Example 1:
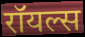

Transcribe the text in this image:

रॉयल्स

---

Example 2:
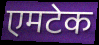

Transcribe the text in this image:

एमटेक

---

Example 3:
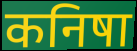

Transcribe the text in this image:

कनिषा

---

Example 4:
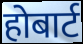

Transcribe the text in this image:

होबार्ट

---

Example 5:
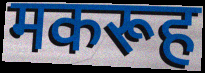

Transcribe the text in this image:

मकरूह